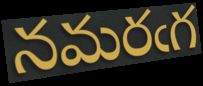
నమరఁగ